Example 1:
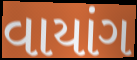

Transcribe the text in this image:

વાયાંગ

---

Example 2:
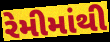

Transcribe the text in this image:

રેમીમાંથી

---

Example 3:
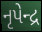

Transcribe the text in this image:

નૃપેન્દ્ર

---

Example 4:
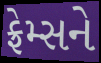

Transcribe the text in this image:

ફ્રેમ્સને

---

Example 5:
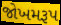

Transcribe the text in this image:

જોખમરૂપ